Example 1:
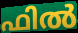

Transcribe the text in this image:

ഫിൽ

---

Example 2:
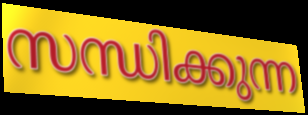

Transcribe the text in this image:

സന്ധിക്കുന്ന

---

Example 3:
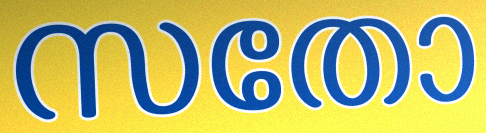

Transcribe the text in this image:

സതോ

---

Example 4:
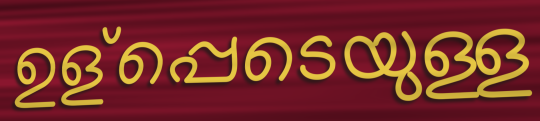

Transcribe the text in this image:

ഉള്പ്പെടെയുള്ള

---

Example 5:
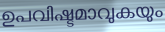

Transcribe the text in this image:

ഉപവിഷ്ടമാവുകയും